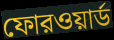
ফোরওয়ার্ড